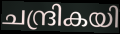
ചന്ദ്രികയി